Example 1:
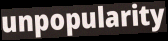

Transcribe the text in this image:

unpopularity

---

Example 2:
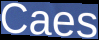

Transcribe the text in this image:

Caes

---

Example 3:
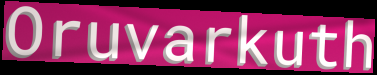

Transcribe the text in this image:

Oruvarkuth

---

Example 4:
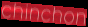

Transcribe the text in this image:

chinchon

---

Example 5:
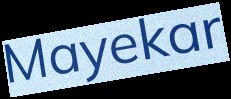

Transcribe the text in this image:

Mayekar